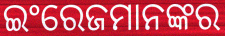
ଇଂରେଜମାନଙ୍କର